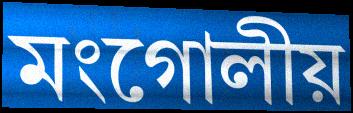
মংগোলীয়